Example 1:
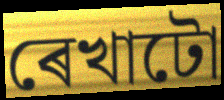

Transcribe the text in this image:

ৰেখাটো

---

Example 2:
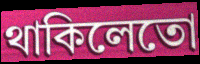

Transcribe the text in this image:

থাকিলেতো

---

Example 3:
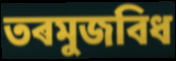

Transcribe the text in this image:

তৰমুজবিধ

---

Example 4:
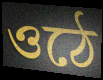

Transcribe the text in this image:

ওঠে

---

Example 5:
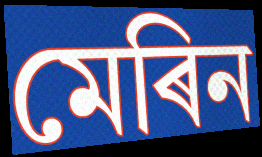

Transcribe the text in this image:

মেৰিন